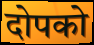
दोपको